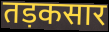
तड़कसार